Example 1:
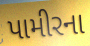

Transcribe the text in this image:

પામીરના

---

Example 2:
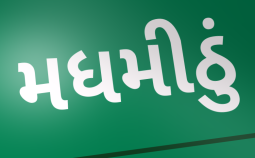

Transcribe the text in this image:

મધમીઠું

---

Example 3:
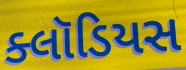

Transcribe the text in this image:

ક્લૉડિયસ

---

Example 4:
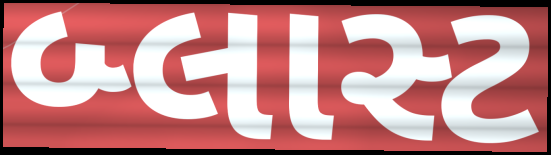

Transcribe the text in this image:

બ્લાસ્ટ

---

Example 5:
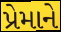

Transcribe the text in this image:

પ્રેમાને